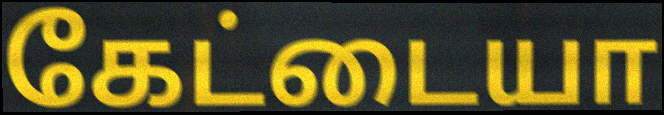
கேட்டையா